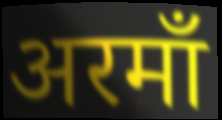
अरमाँ